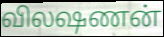
விலஷணன்